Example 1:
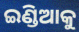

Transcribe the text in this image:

ଇଣ୍ଡିଆକୁ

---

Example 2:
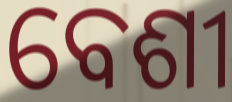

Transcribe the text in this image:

ବେଶୀ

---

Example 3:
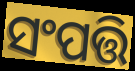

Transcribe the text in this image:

ସଂପତ୍ତି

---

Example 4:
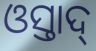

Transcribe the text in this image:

ଓସ୍ତାଦ୍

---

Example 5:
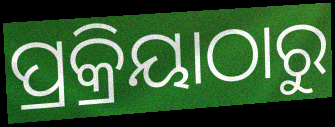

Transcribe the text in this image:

ପ୍ରକ୍ରିୟାଠାରୁ